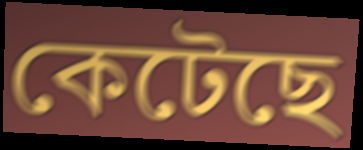
কেটেছে